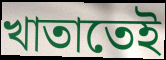
খাতাতেই